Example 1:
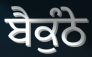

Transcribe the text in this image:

ਬੈਕੁੰਠੇ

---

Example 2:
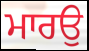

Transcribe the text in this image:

ਮਾਰਉ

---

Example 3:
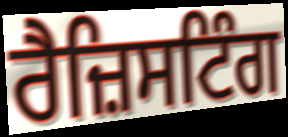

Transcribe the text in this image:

ਰੈਜ਼ਿਸਟਿੰਗ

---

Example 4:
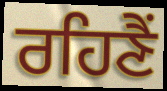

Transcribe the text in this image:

ਰਹਿਣੈਂ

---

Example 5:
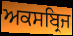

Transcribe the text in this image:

ਅਕਸਬ੍ਰਿਜ